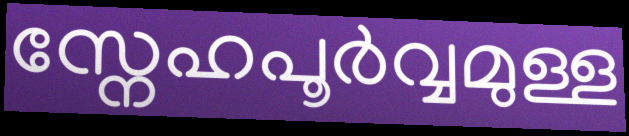
സ്നേഹപൂർവ്വമുള്ള